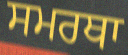
ਸਮਰਥਾ